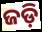
ଜଡ଼ି